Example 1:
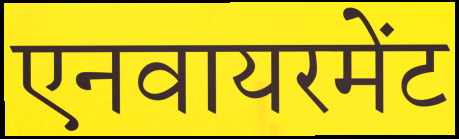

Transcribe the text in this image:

एनवायरमेंट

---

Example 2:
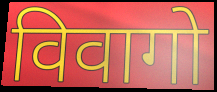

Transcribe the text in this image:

विवागो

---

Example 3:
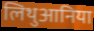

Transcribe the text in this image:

लिथुआनिया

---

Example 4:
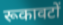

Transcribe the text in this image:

रूकावटों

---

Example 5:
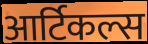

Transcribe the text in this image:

आर्टिकल्स